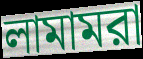
লামামরা